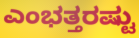
ಎಂಭತ್ತರಷ್ಟು